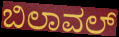
ಬಿಲಾವಲ್